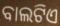
ବାଲଟିଏ